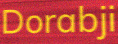
Dorabji